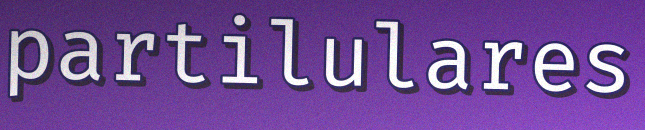
partilulares